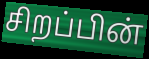
சிறப்பின்